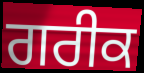
ਗਰੀਕ